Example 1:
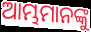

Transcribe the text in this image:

ଆମ୍ଭମାନଙ୍କୁ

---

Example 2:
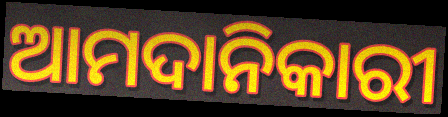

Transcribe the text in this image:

ଆମଦାନିକାରୀ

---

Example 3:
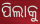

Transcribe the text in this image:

ପିଲାକୁ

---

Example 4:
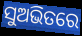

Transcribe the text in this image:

ସୁଅଭିତରେ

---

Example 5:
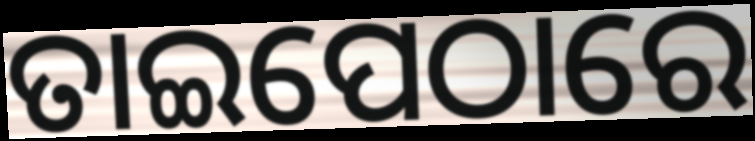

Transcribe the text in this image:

ତାଇପେଠାରେ